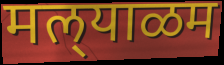
मल्याळम